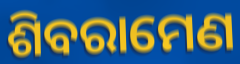
ଶିବରାମେଣ